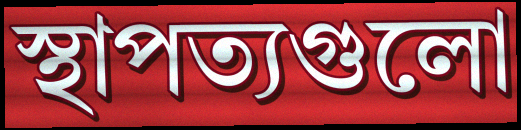
স্থাপত্যগুলো